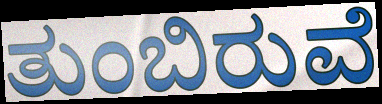
ತುಂಬಿರುವೆ